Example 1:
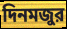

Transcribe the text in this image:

দিনমজুর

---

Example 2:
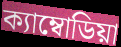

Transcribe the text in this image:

ক্যাম্বোডিয়া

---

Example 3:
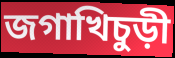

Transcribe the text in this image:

জগাখিচুড়ী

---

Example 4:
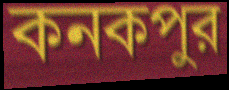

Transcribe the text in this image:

কনকপুর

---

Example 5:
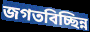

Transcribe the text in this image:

জগতবিচ্ছিন্ন